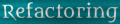
Refactoring